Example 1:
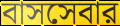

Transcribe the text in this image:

বাসসেবার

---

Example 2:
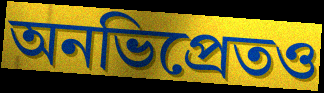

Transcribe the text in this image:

অনভিপ্রেতও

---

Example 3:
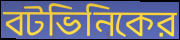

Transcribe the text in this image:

বটভিনিকের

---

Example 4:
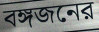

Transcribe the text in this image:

বঙ্গজনের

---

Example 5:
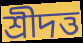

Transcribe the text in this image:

শ্রীদত্ত